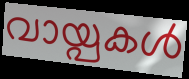
വായ്പകൾ